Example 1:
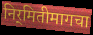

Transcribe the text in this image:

निर्मितीमागचा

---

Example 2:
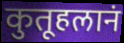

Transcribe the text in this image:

कुतूहलानं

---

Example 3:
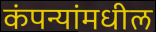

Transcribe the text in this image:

कंपन्यांमधील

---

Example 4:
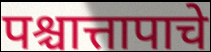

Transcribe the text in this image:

पश्चात्तापाचे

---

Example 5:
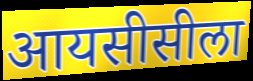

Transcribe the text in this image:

आयसीसीला